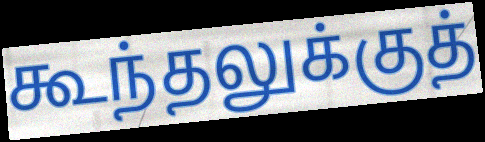
கூந்தலுக்குத்